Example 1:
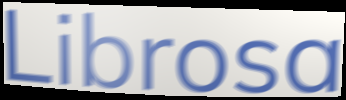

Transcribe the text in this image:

Librosa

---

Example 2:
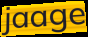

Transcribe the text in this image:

jaage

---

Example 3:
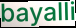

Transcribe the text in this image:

bayalli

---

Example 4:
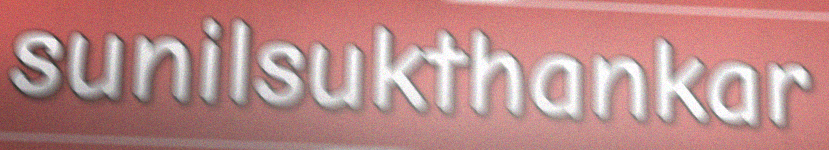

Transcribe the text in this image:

sunilsukthankar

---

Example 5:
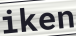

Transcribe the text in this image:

iken